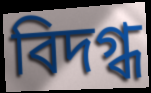
বিদগ্ধ